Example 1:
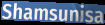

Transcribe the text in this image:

Shamsunisa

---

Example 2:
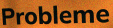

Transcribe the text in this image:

Probleme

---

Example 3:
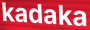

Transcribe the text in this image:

kadaka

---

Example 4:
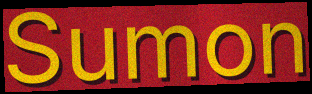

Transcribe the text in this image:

Sumon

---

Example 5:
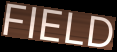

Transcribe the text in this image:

FIELD